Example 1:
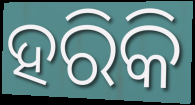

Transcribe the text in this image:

ହରିକି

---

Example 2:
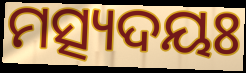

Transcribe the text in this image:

ମତ୍ସ୍ୟଦୟଃ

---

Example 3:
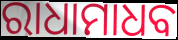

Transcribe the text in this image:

ରାଧାମାଧବ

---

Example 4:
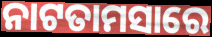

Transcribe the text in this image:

ନାଟତାମସାରେ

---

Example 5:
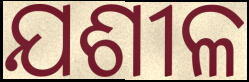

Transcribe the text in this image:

ଯଶୀଳ